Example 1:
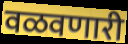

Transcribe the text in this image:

वळवणारी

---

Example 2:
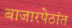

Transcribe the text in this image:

बाजारपेठांत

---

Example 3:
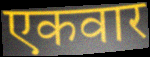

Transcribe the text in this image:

एकवार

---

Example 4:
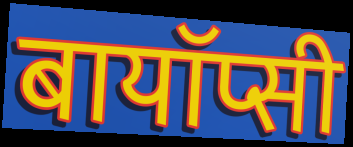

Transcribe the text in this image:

बायॉप्सी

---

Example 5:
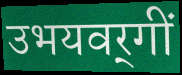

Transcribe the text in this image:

उभयवर्गीं